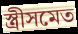
স্ত্রীসমেত